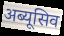
अब्यूसिव